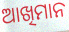
ଆଖିମାନ